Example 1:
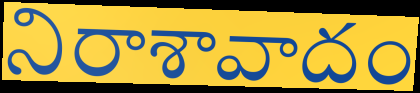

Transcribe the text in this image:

నిరాశావాదం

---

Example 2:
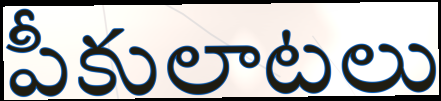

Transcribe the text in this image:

పీకులాటలు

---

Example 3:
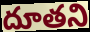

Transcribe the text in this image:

దూతని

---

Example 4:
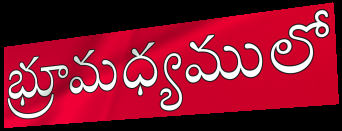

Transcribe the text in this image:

భ్రూమధ్యములో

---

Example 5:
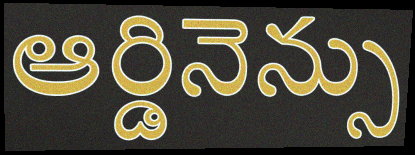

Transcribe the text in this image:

ఆర్డినెన్సు